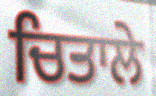
ਚਿਤਾਲੇ